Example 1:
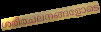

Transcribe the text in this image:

ശരീരചലനങ്ങളോടെ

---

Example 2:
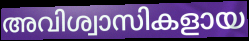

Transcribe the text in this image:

അവിശ്വാസികളായ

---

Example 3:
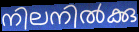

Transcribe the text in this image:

നിലനിൽക്കു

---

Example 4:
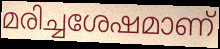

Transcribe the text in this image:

മരിച്ചശേഷമാണ്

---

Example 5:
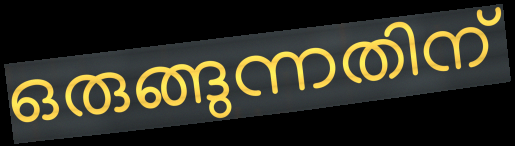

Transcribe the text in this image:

ഒരുങ്ങുന്നതിന്